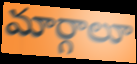
మార్గాలూ